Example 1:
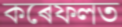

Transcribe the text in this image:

কৰেফলত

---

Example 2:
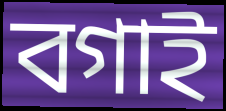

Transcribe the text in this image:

বগাই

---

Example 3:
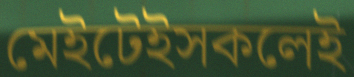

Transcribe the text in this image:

মেইটেইসকলেই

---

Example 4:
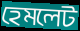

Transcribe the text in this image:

হেমলেট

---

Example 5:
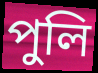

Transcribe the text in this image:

পুলি